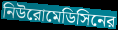
নিউরোমেডিসিনের